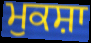
ਮੁਕਸ਼ਾ